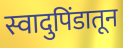
स्वादुपिंडातून